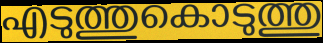
എടുത്തുകൊടുത്തു